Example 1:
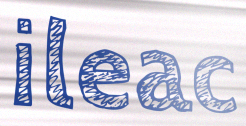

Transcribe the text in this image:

ileac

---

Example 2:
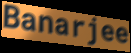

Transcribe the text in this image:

Banarjee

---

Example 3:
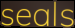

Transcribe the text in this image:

seals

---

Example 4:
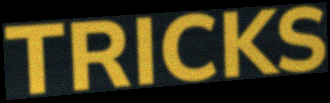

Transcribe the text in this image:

TRICKS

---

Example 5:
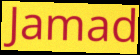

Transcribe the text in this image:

Jamad